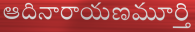
ఆదినారాయణమూర్తి